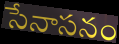
సేనాసనం